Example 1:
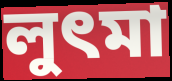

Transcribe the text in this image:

লুৎমা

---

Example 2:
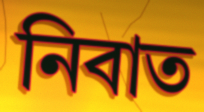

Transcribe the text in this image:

নিবাত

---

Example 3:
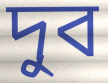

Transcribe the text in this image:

দুব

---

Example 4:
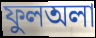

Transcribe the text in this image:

ফুলঅলা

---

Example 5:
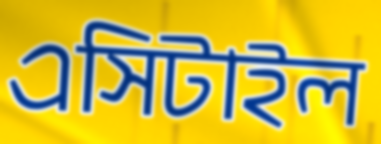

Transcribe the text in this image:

এসিটাইল